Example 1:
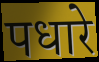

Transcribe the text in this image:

पधारे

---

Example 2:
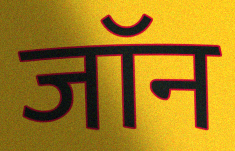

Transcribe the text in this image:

जॉन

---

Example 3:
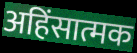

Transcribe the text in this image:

अहिंसात्मक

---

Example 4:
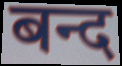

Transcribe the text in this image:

बन्द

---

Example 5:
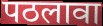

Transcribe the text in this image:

पठलावा